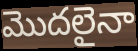
మొదలైనా